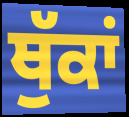
ਥੁੱਕਾਂ